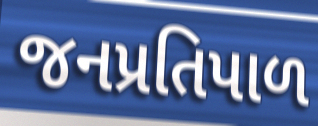
જનપ્રતિપાળ